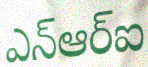
ఎన్ఆర్ఐ